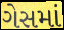
ગેસમાં